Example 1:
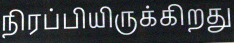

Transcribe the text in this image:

நிரப்பியிருக்கிறது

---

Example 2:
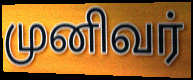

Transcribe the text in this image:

முனிவர்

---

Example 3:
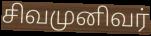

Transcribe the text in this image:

சிவமுனிவர்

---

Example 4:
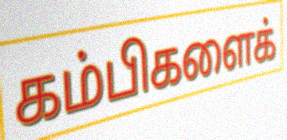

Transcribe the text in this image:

கம்பிகளைக்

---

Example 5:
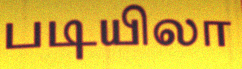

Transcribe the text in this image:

படியிலா